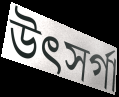
উৎসৰ্গা